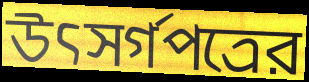
উৎসর্গপত্রের